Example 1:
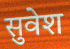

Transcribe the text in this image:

सुवेश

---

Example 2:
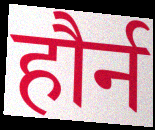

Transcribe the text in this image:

हौर्न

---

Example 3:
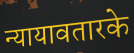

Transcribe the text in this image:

न्यायावतारके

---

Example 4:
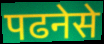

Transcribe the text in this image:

पढनेसे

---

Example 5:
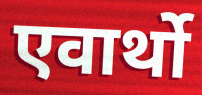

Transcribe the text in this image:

एवार्थो